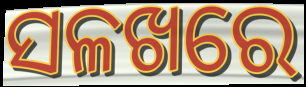
ସଳଖରେ